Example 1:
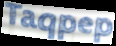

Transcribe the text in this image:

Taqpep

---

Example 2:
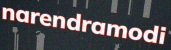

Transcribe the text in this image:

narendramodi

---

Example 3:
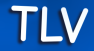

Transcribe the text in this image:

TLV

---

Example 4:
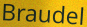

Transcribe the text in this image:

Braudel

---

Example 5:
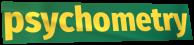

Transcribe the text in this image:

psychometry